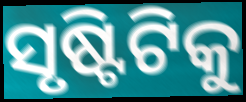
ସୃଷ୍ଟିଟିକୁ